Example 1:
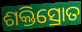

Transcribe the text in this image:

ଶକ୍ତିସ୍ରୋତ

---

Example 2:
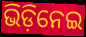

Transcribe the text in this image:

ଭିଡ଼ିନେଇ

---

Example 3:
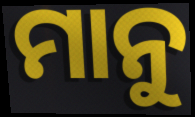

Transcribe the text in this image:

ମାନୁ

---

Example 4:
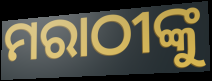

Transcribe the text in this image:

ମରାଠୀଙ୍କୁ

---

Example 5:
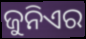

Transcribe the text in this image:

ଜୁନିଏର